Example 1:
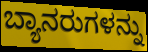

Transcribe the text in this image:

ಬ್ಯಾನರುಗಳನ್ನು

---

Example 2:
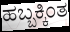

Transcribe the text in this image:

ಹಬ್ಬಕ್ಕಿಂತ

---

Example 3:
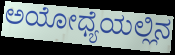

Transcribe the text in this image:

ಅಯೋಧ್ಯೆಯಲ್ಲಿನ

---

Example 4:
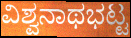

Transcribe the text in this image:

ವಿಶ್ವನಾಥಭಟ್ಟ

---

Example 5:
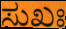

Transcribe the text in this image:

ಸುಖಃ